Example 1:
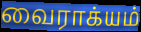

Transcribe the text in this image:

வைராக்யம்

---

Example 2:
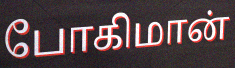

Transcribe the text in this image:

போகிமான்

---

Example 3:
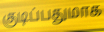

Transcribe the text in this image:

குடிப்பதுமாக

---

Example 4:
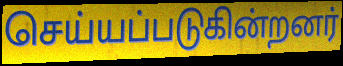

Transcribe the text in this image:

செய்யப்படுகின்றனர்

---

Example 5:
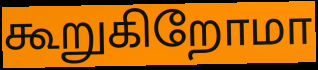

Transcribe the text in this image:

கூறுகிறோமா